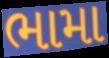
ભામા